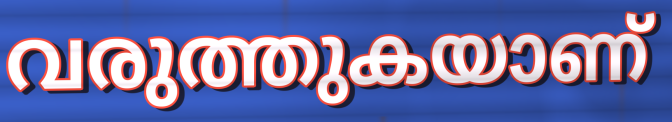
വരുത്തുകയാണ്